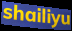
shailiyu